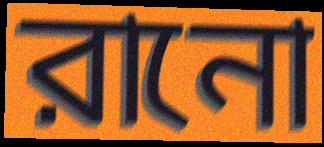
রানো